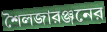
শৈলজারঞ্জনের